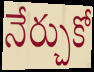
నేర్చుకో